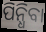
ପିନ୍ଧିବା